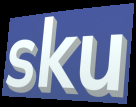
sku